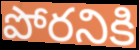
పోరనికి